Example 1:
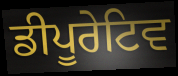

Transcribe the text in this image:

ਡੀਪੂਰੇਟਿਵ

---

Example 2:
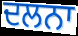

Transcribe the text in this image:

ਦਲਨਾ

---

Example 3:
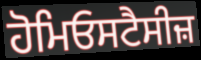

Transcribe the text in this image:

ਹੋਮਿਓਸਟੈਸੀਜ਼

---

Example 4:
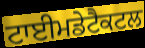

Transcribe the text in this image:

ਟਾਈਮਡੇਟੈਕਟਲ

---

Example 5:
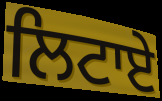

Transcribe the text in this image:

ਲਿਟਾਏ